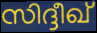
സിദ്ദീഖ്